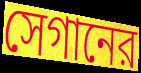
সেগানের